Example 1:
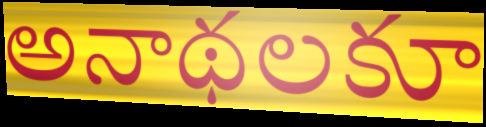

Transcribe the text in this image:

అనాథలకూ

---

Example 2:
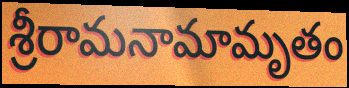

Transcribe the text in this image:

శ్రీరామనామామృతం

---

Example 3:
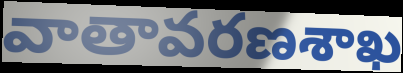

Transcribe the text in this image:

వాతావరణశాఖ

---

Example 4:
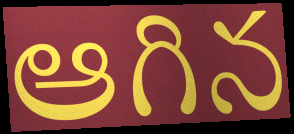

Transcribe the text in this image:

ఆగిన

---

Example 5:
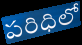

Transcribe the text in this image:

పరిధిలో